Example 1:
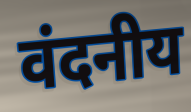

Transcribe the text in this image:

वंदनीय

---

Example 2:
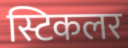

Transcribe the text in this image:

स्टिकलर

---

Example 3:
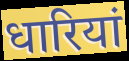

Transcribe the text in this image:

धारियां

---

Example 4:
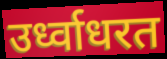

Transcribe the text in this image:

उर्ध्वाधरत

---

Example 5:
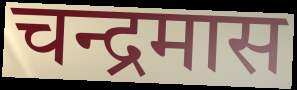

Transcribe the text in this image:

चन्द्रमास